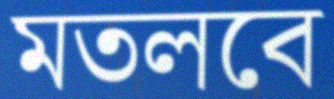
মতলবে